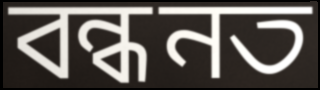
বন্ধনত